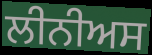
ਲੀਨੀਅਸ